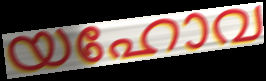
യഹോവ